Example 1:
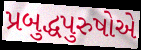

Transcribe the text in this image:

પ્રબુદ્ધપુરુષોએ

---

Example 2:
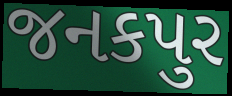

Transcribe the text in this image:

જનકપુર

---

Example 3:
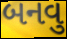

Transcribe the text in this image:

બનવુ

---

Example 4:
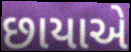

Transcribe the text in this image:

છાયાએ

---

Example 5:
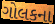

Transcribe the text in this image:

ગોલકના